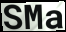
SMa